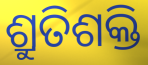
ଶ୍ରୁତିଶକ୍ତି